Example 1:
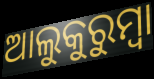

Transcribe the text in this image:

ଆଲୁକୁରୁମ୍ବା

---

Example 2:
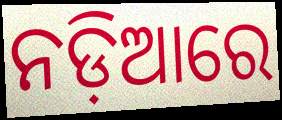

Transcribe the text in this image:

ନଡ଼ିଆରେ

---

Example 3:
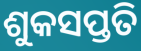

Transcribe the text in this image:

ଶୁକସପ୍ତତି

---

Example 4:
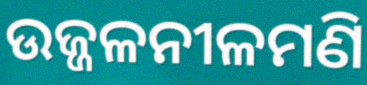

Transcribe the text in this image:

ଉଜ୍ଜଳନୀଳମଣି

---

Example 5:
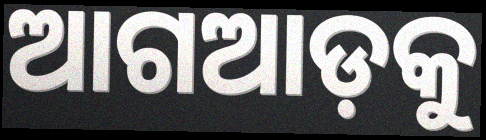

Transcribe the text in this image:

ଆଗଆଡ଼କୁ